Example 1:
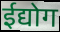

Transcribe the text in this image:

ईद्योग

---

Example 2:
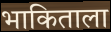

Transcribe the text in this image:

भाकिताला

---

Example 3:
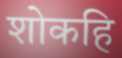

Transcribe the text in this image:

शोकहि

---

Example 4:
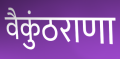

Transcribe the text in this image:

वैकुंठराणा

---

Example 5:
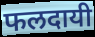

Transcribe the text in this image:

फलदायी